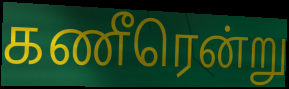
கணீரென்று